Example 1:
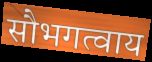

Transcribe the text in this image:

सौभगत्वाय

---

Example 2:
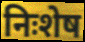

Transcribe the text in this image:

निःशेष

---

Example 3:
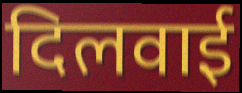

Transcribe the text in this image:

दिलवाई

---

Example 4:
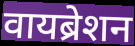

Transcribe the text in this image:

वायब्रेशन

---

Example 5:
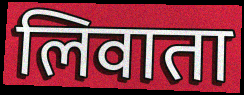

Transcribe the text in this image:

लिवाता